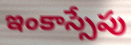
ఇంకాస్సేపు